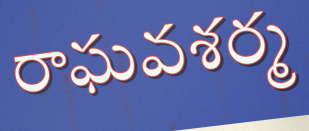
రాఘవశర్మ